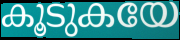
കൂടുകയേ